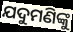
ଯଦୁମଣିଙ୍କୁ